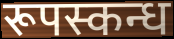
रूपस्कन्ध